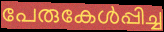
പേരുകേൾപ്പിച്ച